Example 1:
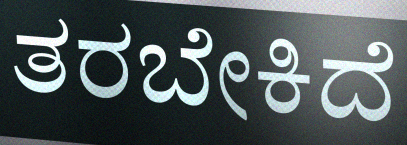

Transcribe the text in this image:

ತರಬೇಕಿದೆ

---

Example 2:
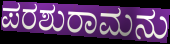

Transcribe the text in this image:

ಪರಶುರಾಮನು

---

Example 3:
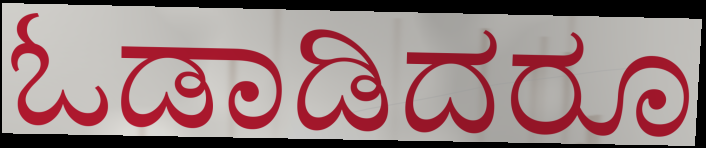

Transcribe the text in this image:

ಓಡಾಡಿದರೂ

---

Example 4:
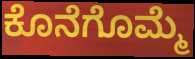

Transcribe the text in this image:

ಕೊನೆಗೊಮ್ಮೆ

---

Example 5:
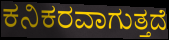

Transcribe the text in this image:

ಕನಿಕರವಾಗುತ್ತದೆ